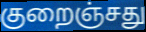
குறைஞ்சது